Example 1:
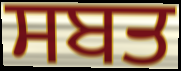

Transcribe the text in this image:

ਸਬਤ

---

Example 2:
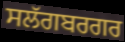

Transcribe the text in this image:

ਸਲੱਗਬਰਗਰ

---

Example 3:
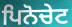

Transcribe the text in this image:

ਪਿਨੋਚੇਟ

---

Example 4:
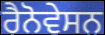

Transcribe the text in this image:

ਰੈਨੋਵੇਸਨ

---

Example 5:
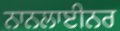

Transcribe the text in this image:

ਨਾਨਲਾਈਨਰ